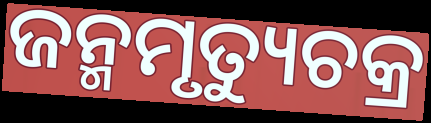
ଜନ୍ମମୃତ୍ୟୁଚକ୍ର